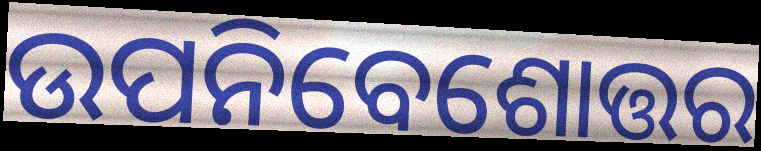
ଉପନିବେଶୋତ୍ତର